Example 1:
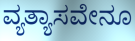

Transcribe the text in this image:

ವ್ಯತ್ಯಾಸವೇನೂ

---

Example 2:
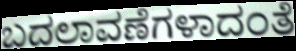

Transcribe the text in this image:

ಬದಲಾವಣೆಗಳಾದಂತೆ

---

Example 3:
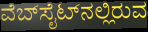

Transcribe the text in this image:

ವೆಬ್‌ಸೈಟ್‌ನಲ್ಲಿರುವ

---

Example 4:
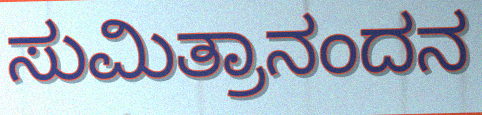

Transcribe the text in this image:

ಸುಮಿತ್ರಾನಂದನ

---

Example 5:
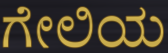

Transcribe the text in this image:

ಗೇಲಿಯ